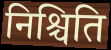
निश्चिति